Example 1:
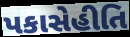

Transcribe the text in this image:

પકાસેહીતિ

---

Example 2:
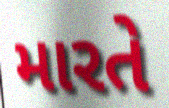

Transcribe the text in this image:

મારતે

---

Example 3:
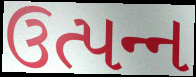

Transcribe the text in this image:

ઉત્પન્‍ન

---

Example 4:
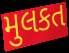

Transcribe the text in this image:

મુલકત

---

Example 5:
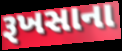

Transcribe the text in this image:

રૂખસાના